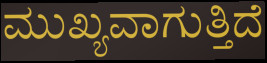
ಮುಖ್ಯವಾಗುತ್ತಿದೆ